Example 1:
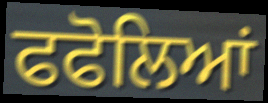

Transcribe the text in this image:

ਫਫੋਲਿਆਂ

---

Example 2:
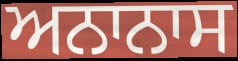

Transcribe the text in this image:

ਅਨਾਨਾਸ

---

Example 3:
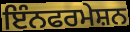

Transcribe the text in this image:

ਇੰਨਫਰਮੇਸ਼ਨ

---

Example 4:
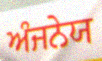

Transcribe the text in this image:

ਅੰਜਨੇਯ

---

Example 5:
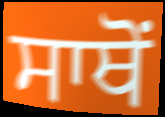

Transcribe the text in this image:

ਸਾਥੋਂ